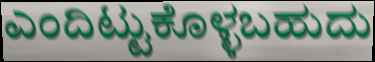
ಎಂದಿಟ್ಟುಕೊಳ್ಳಬಹುದು